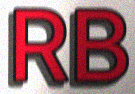
RB